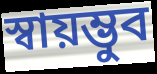
স্বায়ম্ভুব